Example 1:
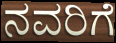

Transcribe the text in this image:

ನವರಿಗೆ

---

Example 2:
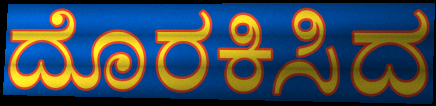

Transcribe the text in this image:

ದೊರಕಿಸಿದ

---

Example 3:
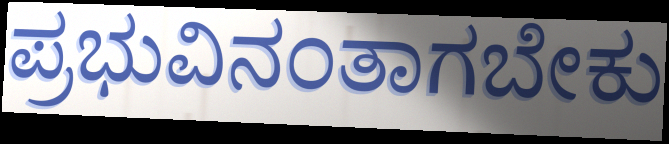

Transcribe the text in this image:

ಪ್ರಭುವಿನಂತಾಗಬೇಕು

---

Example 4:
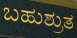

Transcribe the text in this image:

ಬಹುಶ್ರುತ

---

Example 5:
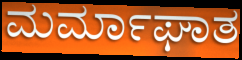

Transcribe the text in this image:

ಮರ್ಮಾಘಾತ